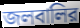
জলবালির